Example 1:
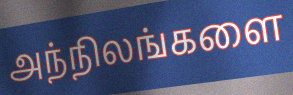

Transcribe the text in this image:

அந்நிலங்களை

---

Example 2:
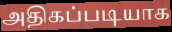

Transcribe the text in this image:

அதிகப்படியாக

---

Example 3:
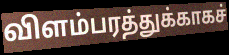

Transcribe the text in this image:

விளம்பரத்துக்காகச்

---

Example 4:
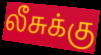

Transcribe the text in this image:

லீசுக்கு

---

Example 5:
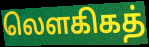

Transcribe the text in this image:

லௌகிகத்